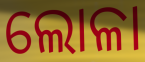
ଲୋଳା